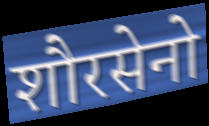
शौरसेनो